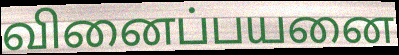
வினைப்பயனை